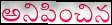
అనిపించిన